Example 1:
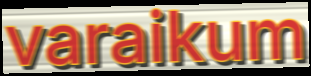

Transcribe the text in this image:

varaikum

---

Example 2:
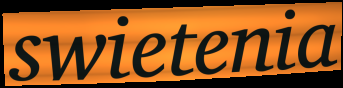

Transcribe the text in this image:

swietenia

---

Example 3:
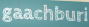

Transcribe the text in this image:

gaachburi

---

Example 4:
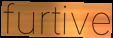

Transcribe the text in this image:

furtive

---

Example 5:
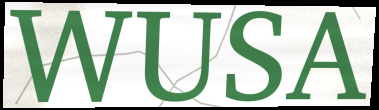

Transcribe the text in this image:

WUSA